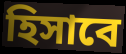
হিসাবে